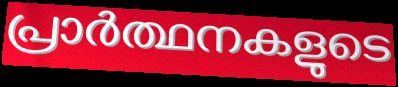
പ്രാർത്ഥനകളുടെ